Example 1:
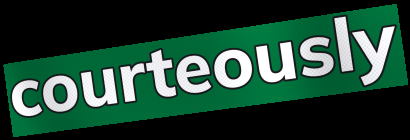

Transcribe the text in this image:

courteously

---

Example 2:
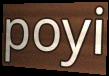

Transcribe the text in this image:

poyi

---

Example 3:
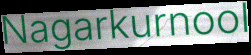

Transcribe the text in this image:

Nagarkurnool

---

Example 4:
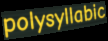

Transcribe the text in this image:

polysyllabic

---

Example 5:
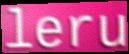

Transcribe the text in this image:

leru